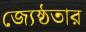
জ্যেষ্ঠতার